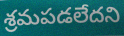
శ్రమపడలేదని